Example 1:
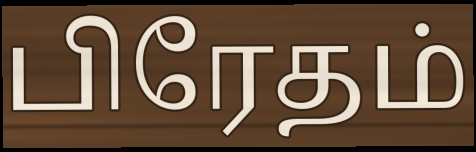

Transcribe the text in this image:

பிரேதம்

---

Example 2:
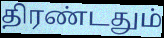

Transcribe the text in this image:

திரண்டதும்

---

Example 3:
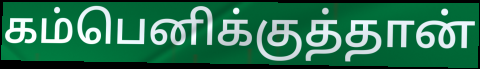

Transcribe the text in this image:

கம்பெனிக்குத்தான்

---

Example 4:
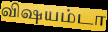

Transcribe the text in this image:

விஷயம்டா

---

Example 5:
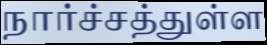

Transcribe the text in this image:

நார்ச்சத்துள்ள